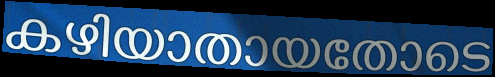
കഴിയാതായതോടെ